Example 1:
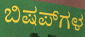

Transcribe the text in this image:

ಬಿಷಪ್‌ಗಳ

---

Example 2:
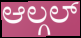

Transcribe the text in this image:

ಆಲ್ಗಲ್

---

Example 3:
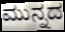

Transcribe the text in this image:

ಮುನ್ನದ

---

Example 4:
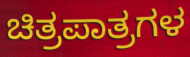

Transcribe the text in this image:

ಚಿತ್ರಪಾತ್ರಗಳ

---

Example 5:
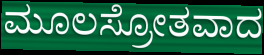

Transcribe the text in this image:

ಮೂಲಸ್ರೋತವಾದ